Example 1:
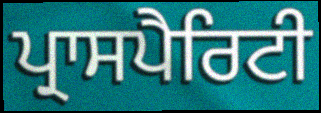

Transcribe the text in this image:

ਪ੍ਰਾਸਪੈਰਿਟੀ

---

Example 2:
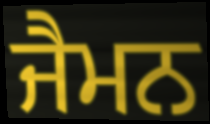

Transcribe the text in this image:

ਜੈਮਨ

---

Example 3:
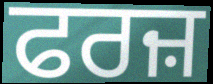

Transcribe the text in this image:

ਫਰਜ਼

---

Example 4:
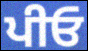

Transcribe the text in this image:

ਪੀਓ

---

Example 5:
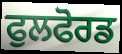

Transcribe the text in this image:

ਫੁਲਫੋਰਡ